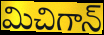
మిచిగాన్